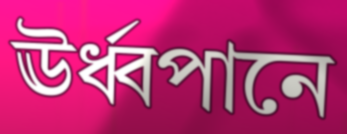
ঊর্ধ্বপানে